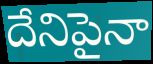
దేనిపైనా